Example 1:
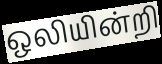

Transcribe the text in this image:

ஒலியின்றி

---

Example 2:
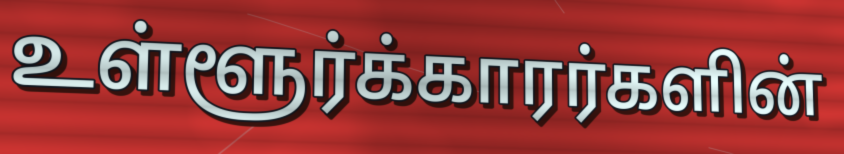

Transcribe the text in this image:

உள்ளூர்க்காரர்களின்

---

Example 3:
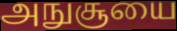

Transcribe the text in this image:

அநுசூயை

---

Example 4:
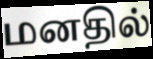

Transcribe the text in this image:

மனதில்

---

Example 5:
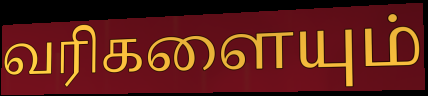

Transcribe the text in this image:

வரிகளையும்